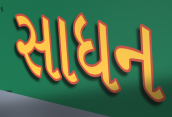
સાધન